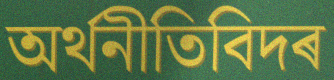
অৰ্থনীতিবিদৰ